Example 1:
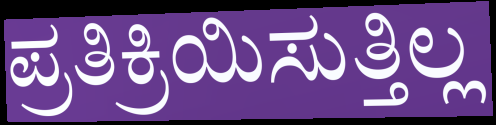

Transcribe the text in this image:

ಪ್ರತಿಕ್ರಿಯಿಸುತ್ತಿಲ್ಲ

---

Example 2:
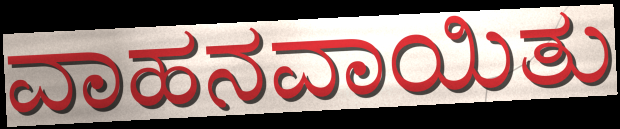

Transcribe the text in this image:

ವಾಹನವಾಯಿತು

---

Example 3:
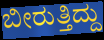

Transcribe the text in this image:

ಬೀರುತ್ತಿದ್ದು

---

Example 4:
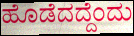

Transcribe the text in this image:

ಹೊಡೆದದ್ದೆಂದು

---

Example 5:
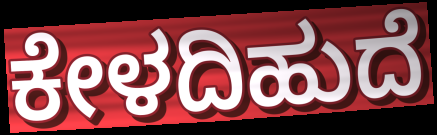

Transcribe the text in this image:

ಕೇಳದಿಹುದೆ